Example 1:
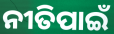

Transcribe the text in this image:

ନୀତିପାଇଁ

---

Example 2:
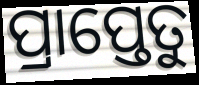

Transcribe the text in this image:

ପ୍ରାପ୍ତେତୁ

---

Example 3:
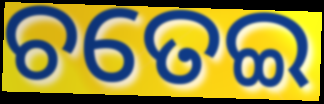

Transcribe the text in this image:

ଚତେଇ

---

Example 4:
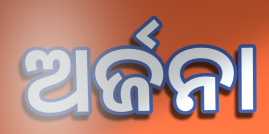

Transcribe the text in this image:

ଅର୍ଜନା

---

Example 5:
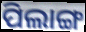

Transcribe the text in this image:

ପିଲାଙ୍ଗ